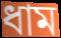
ধাম